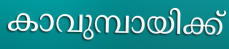
കാവുമ്പായിക്ക്